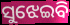
ସୁଝେଇବି